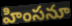
హింసనూ